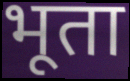
भूता